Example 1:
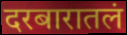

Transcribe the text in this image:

दरबारातलं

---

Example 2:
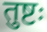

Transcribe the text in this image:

तुष्टः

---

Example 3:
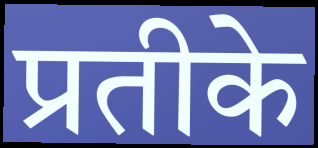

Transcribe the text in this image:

प्रतीके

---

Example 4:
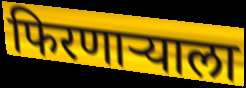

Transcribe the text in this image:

फिरणाऱ्याला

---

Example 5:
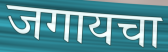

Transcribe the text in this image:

जगायचा